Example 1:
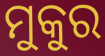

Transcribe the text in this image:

ମୁକୁର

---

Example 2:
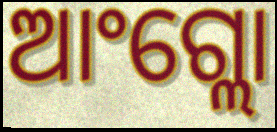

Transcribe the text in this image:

ଆଂଗ୍ଲୋ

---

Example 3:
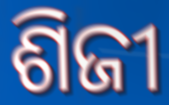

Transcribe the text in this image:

ଶିଜୀ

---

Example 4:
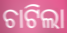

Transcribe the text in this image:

ଚାଟିଲା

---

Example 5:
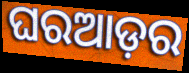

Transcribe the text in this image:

ଘରଆଡ଼ର